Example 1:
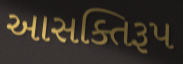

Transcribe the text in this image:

આસક્તિરૂપ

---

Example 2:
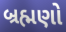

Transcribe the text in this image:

બ્રહ્મણો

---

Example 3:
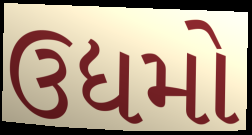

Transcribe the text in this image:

ઉદ્યમો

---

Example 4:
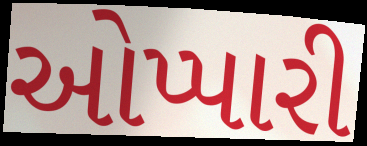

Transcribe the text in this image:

ઓપ્પારી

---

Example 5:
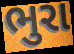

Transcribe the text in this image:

ભુરા